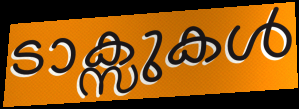
ടാക്സുകൾ